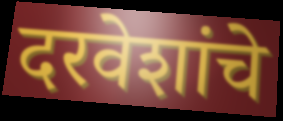
दरवेशांचे